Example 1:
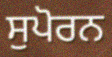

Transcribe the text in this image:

ਸੁਪੋਰਨ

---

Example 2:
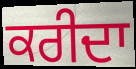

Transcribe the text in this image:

ਕਰੀਦਾ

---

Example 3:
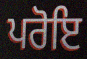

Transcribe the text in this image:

ਪਰੋਇ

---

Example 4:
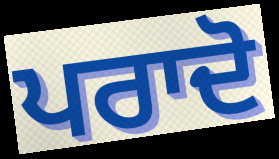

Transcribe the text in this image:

ਪਰਾਦੋ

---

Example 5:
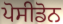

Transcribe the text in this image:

ਪੋਸੀਡੋਨ